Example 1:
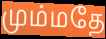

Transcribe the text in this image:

மும்மதே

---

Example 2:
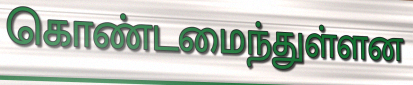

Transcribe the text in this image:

கொண்டமைந்துள்ளன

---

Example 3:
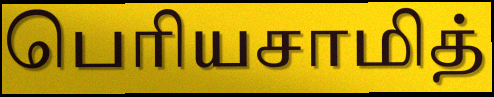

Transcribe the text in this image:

பெரியசாமித்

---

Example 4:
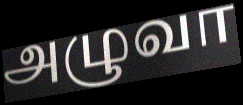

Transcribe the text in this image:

அழுவா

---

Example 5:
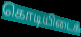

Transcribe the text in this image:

கொடியிடைக்